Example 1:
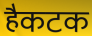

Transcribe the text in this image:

हैकटक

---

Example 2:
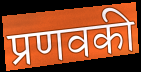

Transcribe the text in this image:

प्रणवकी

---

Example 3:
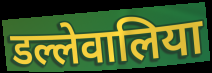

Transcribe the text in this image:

डल्लेवालिया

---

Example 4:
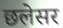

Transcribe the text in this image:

छलेसर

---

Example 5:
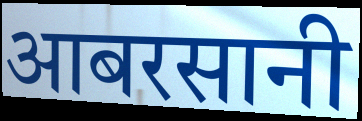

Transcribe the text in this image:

आबरसानी